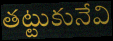
తట్టుకునేవి